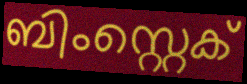
ബിംസ്റ്റെക്